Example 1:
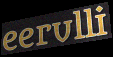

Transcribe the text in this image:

eerulli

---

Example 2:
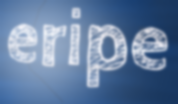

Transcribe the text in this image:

eripe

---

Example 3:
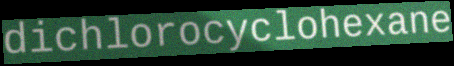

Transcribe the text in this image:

dichlorocyclohexane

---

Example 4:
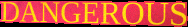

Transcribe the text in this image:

DANGEROUS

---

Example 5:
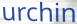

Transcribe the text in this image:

urchin